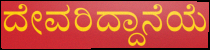
ದೇವರಿದ್ದಾನೆಯೆ